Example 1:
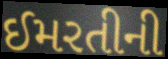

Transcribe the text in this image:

ઈમરતીની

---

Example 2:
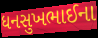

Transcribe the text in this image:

ધનસુખભાઈના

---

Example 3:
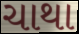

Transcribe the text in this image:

ચાથા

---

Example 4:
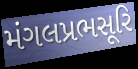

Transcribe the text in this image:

મંગલપ્રભસૂરિ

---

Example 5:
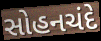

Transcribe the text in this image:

સોહનચંદે